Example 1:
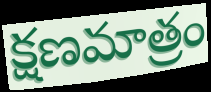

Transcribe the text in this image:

క్షణమాత్రం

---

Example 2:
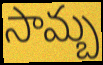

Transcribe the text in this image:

సామ్బ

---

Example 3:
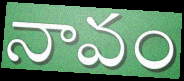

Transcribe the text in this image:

నావం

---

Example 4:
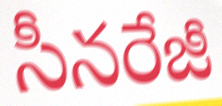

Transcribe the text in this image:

సీనరేజీ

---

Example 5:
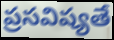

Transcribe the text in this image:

ప్రసవిష్యతే